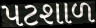
પટશાળ